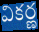
వికర్ణ